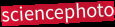
sciencephoto